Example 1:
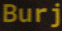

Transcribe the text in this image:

Burj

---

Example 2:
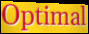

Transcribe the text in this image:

Optimal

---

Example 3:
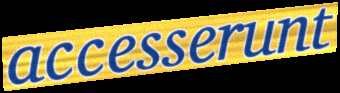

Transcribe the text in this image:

accesserunt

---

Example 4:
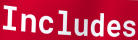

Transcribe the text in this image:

Includes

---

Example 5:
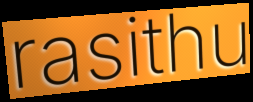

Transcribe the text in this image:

rasithu